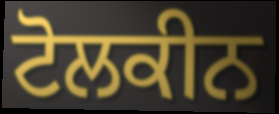
ਟੋਲਕੀਨ